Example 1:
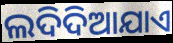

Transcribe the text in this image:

ଲଦିଦିଆଯାଏ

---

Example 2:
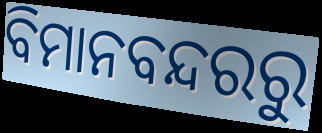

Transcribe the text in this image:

ବିମାନବନ୍ଦରରୁ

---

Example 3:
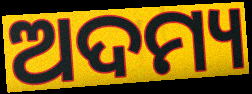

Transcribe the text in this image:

ଅଦମ୍ୟ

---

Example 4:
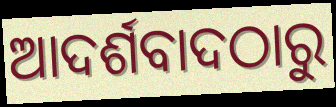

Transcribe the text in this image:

ଆଦର୍ଶବାଦଠାରୁ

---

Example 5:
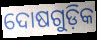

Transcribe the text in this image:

ଦୋଷଗୁଡ଼ିକ